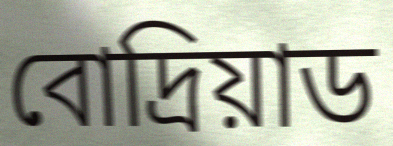
বোদ্রিয়াড